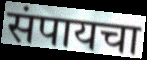
संपायचा